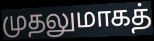
முதலுமாகத்